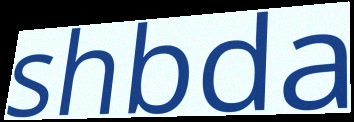
shbda